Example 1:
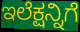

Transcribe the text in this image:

ಇಲೆಕ್ಷನ್ನಿಗೆ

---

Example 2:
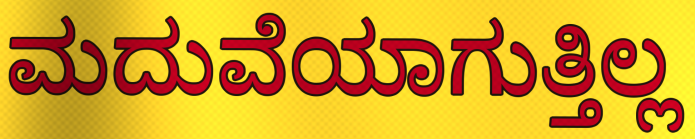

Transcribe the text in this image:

ಮದುವೆಯಾಗುತ್ತಿಲ್ಲ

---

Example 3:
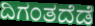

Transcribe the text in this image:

ದಿಗಂತದೆಡೆ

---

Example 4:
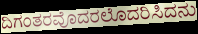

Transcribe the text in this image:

ದಿಗಂತರವೊದರಲೊದರಿಸಿದನು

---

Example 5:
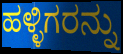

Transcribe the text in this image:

ಹಳ್ಳಿಗರನ್ನು